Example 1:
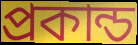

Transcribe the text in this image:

প্রকান্ড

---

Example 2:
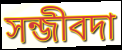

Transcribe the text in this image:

সন্জীবদা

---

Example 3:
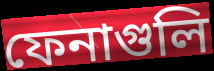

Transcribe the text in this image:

ফেনাগুলি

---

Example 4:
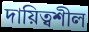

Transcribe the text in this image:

দায়িত্বশীল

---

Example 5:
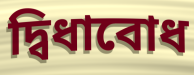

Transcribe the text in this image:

দ্বিধাবোধ